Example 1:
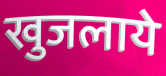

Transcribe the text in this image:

खुजलाये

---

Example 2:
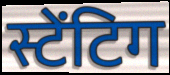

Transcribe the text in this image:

स्टेंटिग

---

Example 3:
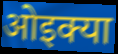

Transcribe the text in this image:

ओइक्या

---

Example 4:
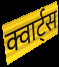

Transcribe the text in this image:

क्वार्ट्स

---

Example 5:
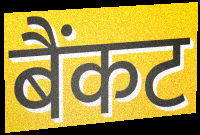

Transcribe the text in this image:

बैंकट